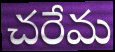
చరేమ